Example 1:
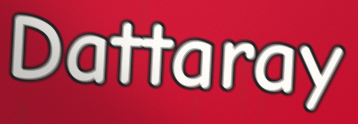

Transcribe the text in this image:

Dattaray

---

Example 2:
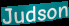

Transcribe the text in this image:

Judson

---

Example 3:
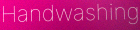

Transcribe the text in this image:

Handwashing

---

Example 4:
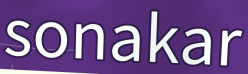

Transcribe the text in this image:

sonakar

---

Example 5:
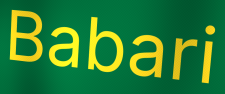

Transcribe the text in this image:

Babari